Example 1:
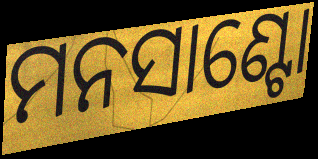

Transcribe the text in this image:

ମନସାଣ୍ଟୋ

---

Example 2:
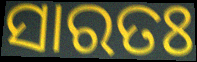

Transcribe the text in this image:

ସାରତଃ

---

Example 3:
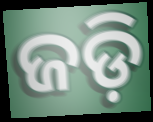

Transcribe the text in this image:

ଜଡ଼ି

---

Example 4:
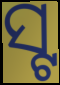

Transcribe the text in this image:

ସ୍ଟ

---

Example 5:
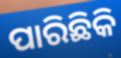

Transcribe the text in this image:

ପାରିଛିକି